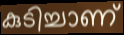
കുടിച്ചാണ്